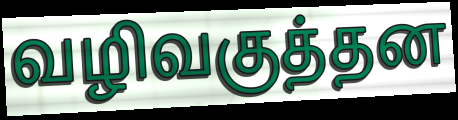
வழிவகுத்தன